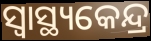
ସ୍ୱାସ୍ଥ୍ୟକେନ୍ଦ୍ର